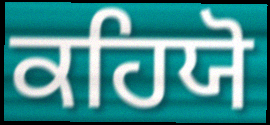
ਕਹਿਯੋ